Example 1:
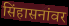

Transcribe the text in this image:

सिंहासनांवर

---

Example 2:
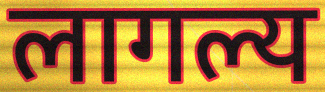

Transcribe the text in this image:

लागल्य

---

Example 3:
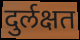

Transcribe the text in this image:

दुर्लक्षत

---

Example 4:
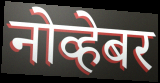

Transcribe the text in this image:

नोव्हेबर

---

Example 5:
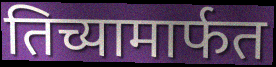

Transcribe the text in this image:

तिच्यामार्फत